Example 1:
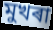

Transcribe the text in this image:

মুখৰা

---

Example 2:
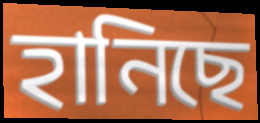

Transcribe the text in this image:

হানিছে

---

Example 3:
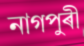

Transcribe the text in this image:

নাগপুৰী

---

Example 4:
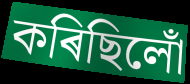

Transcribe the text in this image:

কৰিছিলোঁ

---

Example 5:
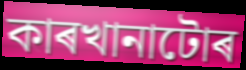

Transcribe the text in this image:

কাৰখানাটোৰ